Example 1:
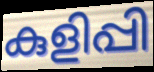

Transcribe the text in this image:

കുളിപ്പി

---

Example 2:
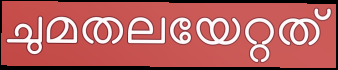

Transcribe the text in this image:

ചുമതലയേറ്റത്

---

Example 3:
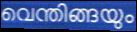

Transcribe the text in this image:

വെന്തിങ്ങയും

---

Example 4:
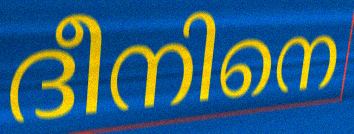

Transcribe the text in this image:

ദീനിനെ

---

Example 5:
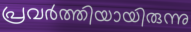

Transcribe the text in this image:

പ്രവർത്തിയായിരുന്നു